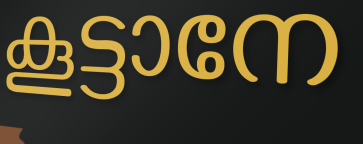
കൂട്ടാനേ